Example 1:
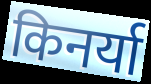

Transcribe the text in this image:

किनर्या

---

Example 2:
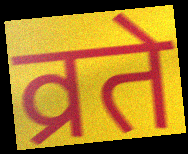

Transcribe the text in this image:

व्रते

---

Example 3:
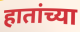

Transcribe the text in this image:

हातांच्या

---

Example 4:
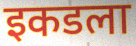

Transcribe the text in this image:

इकडला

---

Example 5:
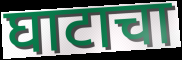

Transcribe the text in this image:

घाटाचा